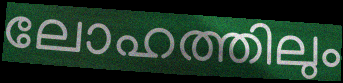
ലോഹത്തിലും